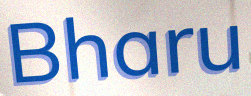
Bharu